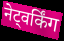
नेट्वर्किंग